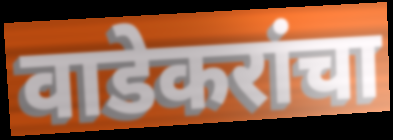
वाडेकरांचा